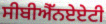
ਸੀਬੀਐੱਨਏਏਟੀ